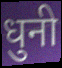
धुनी